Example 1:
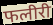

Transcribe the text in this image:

फलीरी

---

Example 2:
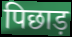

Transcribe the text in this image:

पिछाड़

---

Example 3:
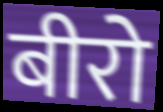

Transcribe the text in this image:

बीरो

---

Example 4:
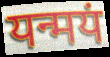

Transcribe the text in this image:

यन्मयं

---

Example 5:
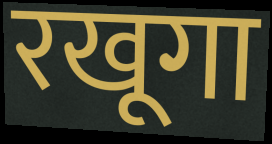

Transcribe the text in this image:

रखूगा